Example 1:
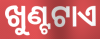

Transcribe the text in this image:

ଖୁଣ୍ଟଟାଏ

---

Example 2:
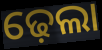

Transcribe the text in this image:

ଢ଼େଲା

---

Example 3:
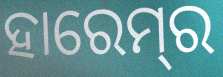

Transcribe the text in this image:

ହାରେମ୍‍ର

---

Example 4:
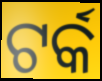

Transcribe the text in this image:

ଟର୍କ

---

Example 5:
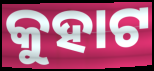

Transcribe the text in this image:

କୁହାଟ